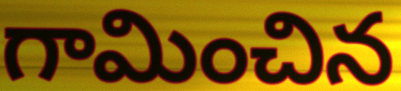
గామించిన